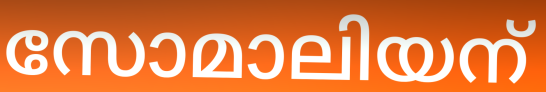
സോമാലിയന്